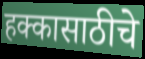
हक्कासाठीचे